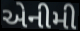
એનીમી